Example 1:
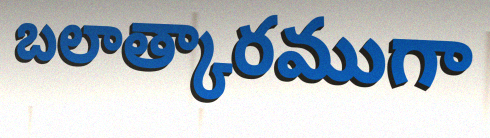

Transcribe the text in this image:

బలాత్కారముగా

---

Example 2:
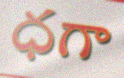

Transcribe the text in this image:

ధగా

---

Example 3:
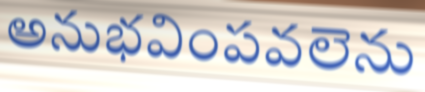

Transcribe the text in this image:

అనుభవింపవలెను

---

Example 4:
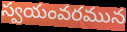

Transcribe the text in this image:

స్వయంవరమున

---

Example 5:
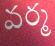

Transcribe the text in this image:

వర్మ